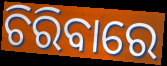
ଚିରିବାରେ